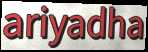
ariyadha